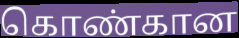
கொண்கான